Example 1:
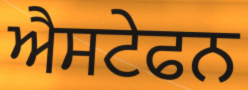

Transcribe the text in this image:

ਐਸਟੇਫਨ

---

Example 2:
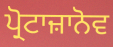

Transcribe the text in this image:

ਪ੍ਰੋਟਾਜ਼ਾਨੋਵ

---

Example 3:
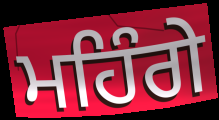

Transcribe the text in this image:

ਮਹਿੰਗੇ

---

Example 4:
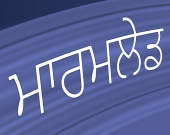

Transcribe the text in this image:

ਮਾਰਮਲੇਡ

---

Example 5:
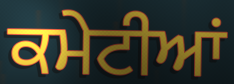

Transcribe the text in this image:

ਕਮੇਟੀਆਂ